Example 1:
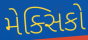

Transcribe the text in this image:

મેક્સિકો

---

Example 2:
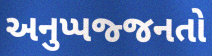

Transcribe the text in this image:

અનુપ્પજ્જનતો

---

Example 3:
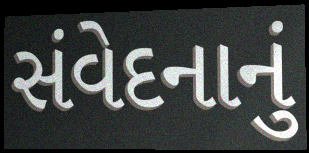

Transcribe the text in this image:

સંવેદનાનું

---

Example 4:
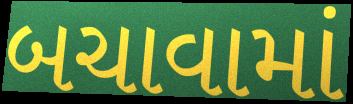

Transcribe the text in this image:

બચાવામાં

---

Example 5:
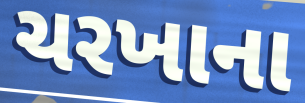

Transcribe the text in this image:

ચરખાના